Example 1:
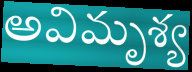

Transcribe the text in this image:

అవిమృశ్య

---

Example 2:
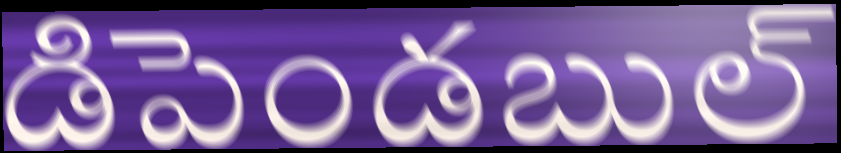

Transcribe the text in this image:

డిపెండబుల్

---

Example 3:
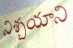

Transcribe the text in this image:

నిశ్చయాని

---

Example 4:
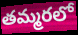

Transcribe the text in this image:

తమ్మరలో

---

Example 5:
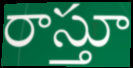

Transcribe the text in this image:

రాస్తూ